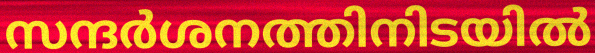
സന്ദർശനത്തിനിടയിൽ